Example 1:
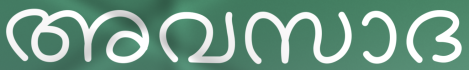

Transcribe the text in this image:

അവസാദ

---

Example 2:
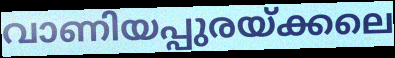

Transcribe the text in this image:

വാണിയപ്പുരയ്ക്കലെ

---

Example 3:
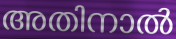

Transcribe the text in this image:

അതിനാൽ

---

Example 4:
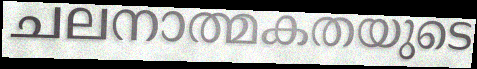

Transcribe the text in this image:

ചലനാത്മകതയുടെ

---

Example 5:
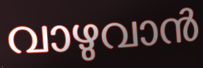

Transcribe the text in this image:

വാഴുവാൻ